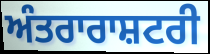
ਅੰਤਰਾਰਾਸ਼ਟਰੀ